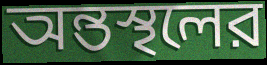
অন্তস্থলের